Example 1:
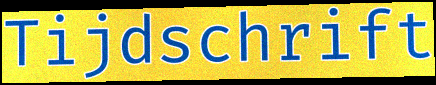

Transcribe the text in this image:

Tijdschrift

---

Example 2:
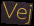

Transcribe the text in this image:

Vej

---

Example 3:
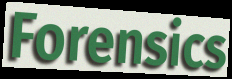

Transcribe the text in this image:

Forensics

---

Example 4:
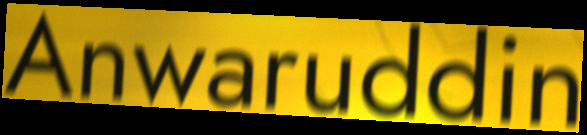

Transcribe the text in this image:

Anwaruddin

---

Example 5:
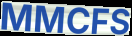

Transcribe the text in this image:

MMCFS